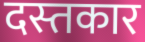
दस्‍तकार